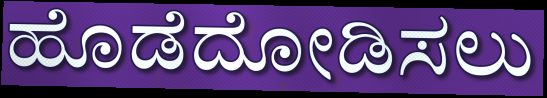
ಹೊಡೆದೋಡಿಸಲು